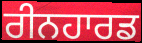
ਰੀਨਹਾਰਡ